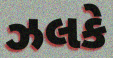
ઝલકે